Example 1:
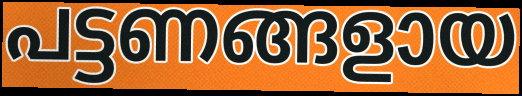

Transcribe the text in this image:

പട്ടണങ്ങളായ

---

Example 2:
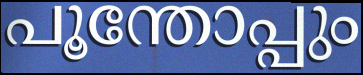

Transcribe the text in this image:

പൂന്തോപ്പും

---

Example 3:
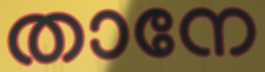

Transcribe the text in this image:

താനേ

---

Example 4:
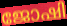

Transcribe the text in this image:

ജോഷി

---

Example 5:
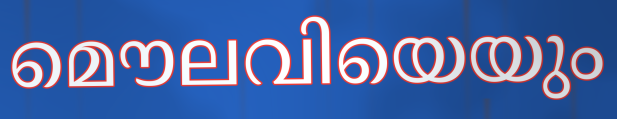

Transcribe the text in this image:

മൌലവിയെയും